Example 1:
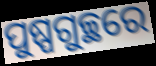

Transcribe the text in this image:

ପୁଷ୍ପଗୁଚ୍ଛରେ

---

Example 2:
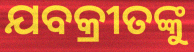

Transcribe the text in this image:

ଯବକ୍ରୀତଙ୍କୁ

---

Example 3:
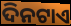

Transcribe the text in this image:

ଦିନଟାଏ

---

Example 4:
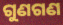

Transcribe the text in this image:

ଗୁଣଗଣ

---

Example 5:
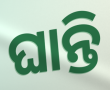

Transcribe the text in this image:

ଘାନ୍ତି